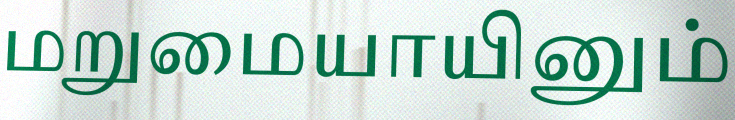
மறுமையாயினும்